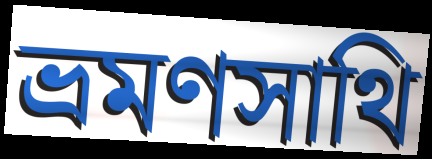
ভ্রমণসাথি